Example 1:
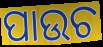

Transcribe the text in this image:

ପାଉଚ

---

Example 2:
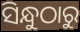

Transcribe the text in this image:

ସିନ୍ଧୁଠାରୁ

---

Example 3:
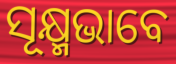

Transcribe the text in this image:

ସୂକ୍ଷ୍ମଭାବେ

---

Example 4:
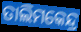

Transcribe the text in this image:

ତାଲିମକେନ୍ଦ୍ର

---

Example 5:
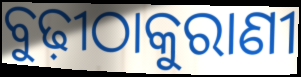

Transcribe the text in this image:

ବୁଢ଼ୀଠାକୁରାଣୀ